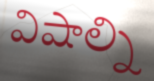
విషాల్ని